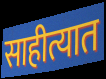
साहीत्यात